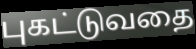
புகட்டுவதை